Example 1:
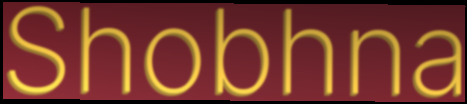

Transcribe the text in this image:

Shobhna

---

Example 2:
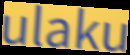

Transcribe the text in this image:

ulaku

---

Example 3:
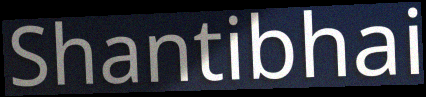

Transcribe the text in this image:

Shantibhai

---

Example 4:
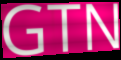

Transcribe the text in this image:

GTN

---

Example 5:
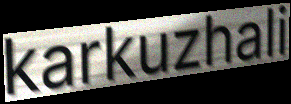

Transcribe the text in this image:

karkuzhali